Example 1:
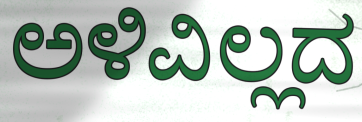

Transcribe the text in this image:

ಅಳಿವಿಲ್ಲದ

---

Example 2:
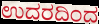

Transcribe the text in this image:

ಉದರದಿಂದ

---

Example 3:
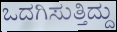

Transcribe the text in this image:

ಒದಗಿಸುತ್ತಿದ್ದು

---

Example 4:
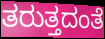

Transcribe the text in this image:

ತರುತ್ತದಂತೆ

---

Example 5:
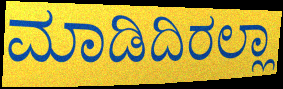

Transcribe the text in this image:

ಮಾಡಿದಿರಲ್ಲಾ